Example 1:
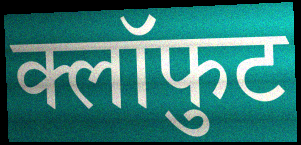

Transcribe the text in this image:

क्लॉफुट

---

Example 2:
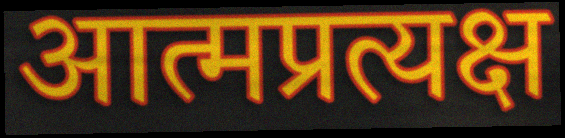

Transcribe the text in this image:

आत्मप्रत्यक्ष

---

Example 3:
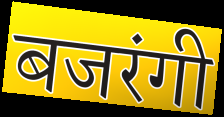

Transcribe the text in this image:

बजरंगी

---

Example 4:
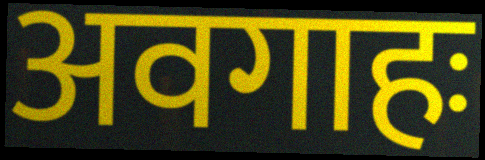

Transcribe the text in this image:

अवगाहः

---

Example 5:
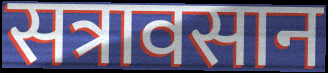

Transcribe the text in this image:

सत्रावसान